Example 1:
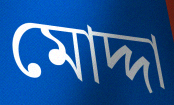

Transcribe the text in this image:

মোদ্দা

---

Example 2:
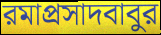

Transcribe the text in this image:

রমাপ্রসাদবাবুর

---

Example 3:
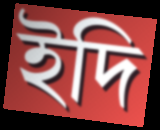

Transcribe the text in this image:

ইদি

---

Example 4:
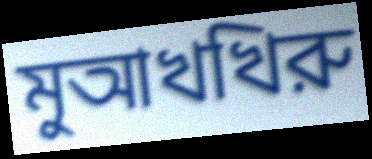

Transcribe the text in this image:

মুআখখিরু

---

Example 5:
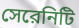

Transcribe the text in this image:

সেরেনিটি